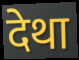
देथा